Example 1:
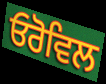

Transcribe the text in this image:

ਓਰੋਵਿਲ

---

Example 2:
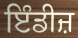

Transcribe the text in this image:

ਇੰਡੀਜ਼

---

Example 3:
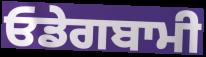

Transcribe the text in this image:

ਓਡੇਗਬਾਮੀ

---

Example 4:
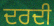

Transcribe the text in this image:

ਦਰਦੀ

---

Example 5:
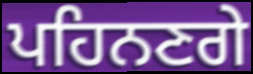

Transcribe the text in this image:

ਪਹਿਨਣਗੇ